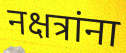
नक्षत्रांना